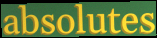
absolutes